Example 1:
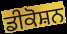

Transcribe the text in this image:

ਡੀਕੋਸ਼ਨ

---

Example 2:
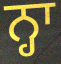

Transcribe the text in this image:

ਨ੍ਹਾ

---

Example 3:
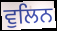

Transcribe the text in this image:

ਵੁਲਿਨ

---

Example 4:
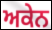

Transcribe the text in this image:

ਅਕੇਨ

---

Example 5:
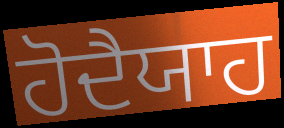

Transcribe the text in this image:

ਹੋਦੈਯਾਹ